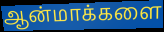
ஆன்மாக்களை